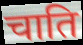
चाति